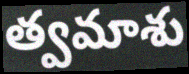
త్వమాశు